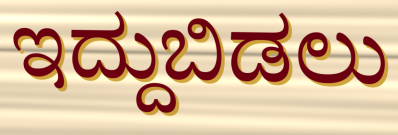
ಇದ್ದುಬಿಡಲು